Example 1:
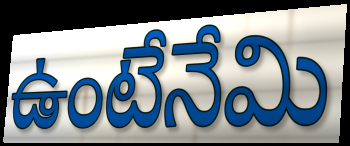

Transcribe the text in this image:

ఉంటేనేమి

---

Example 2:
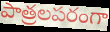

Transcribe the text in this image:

పాత్రలపరంగా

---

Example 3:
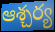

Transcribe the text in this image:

ఆశ్చర్య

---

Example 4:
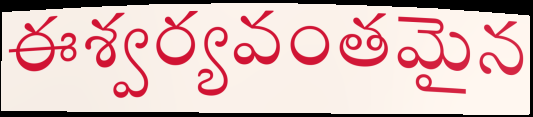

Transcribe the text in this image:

ఈశ్వర్యవంతమైన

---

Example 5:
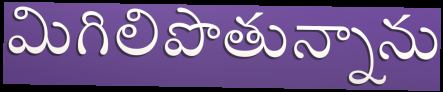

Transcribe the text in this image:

మిగిలిపొతున్నాను